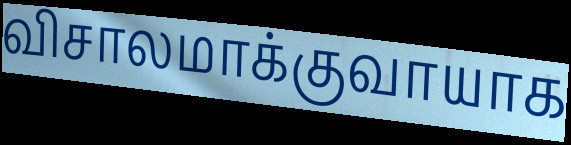
விசாலமாக்குவாயாக